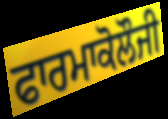
ਫਾਰਮਾਕੋਲੌਜੀ